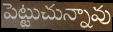
పెట్టుచున్నావు